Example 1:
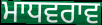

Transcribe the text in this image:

ਮਾਧਵਰਾਵ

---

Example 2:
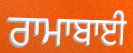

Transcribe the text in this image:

ਰਾਮਾਬਾਈ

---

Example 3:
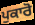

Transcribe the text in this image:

ਪੁਕਾਰੋ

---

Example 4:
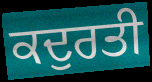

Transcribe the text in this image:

ਕਦੁਰਤੀ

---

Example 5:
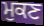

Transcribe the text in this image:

ਮੁਕਣ